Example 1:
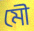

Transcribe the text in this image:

মৌ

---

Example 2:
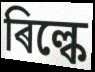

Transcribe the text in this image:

ৰিল্কে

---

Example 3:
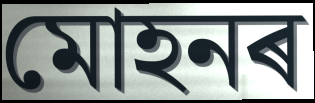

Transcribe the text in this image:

মোহনৰ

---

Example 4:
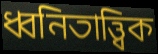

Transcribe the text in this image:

ধ্বনিতাত্ত্বিক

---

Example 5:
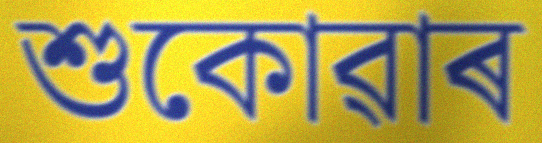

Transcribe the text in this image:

শুকোৱাৰ